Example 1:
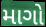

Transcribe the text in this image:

માગો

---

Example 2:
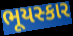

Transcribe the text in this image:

ભૂયસ્કાર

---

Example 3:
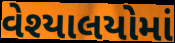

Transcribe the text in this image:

વેશ્યાલયોમાં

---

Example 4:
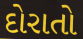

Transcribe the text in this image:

દોરાતો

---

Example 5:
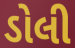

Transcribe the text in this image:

ડોલી